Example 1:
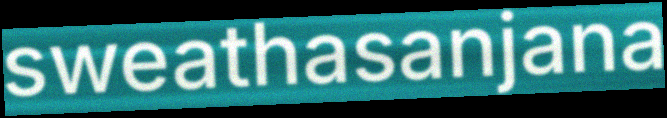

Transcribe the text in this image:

sweathasanjana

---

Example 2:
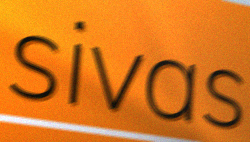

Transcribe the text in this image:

sivas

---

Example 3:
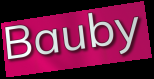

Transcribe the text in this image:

Bauby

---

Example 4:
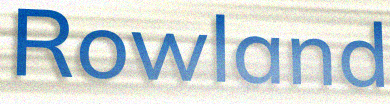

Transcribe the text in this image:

Rowland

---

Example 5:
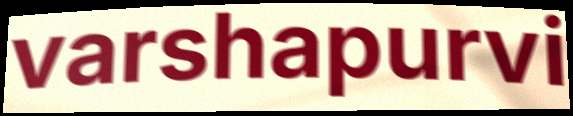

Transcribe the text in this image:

varshapurvi